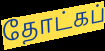
தோட்கப்